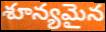
శూన్యమైన